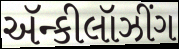
ઍન્કીલૉઝીંગ